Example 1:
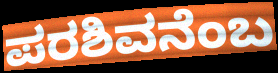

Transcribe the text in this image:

ಪರಶಿವನೆಂಬ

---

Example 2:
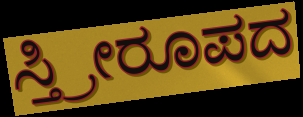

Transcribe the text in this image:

ಸ್ತ್ರೀರೂಪದ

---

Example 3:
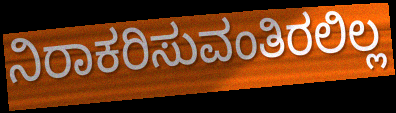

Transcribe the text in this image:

ನಿರಾಕರಿಸುವಂತಿರಲಿಲ್ಲ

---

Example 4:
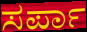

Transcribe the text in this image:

ಸರ್ಪಾ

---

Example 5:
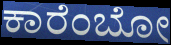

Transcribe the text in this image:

ಕಾರೆಂಬೋ